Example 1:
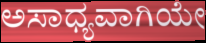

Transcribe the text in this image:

ಅಸಾಧ್ಯವಾಗಿಯೇ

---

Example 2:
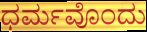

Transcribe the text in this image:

ಧರ್ಮವೊಂದು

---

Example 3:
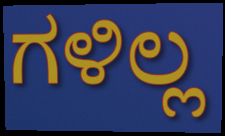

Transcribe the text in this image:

ಗಳಿಲ್ಲ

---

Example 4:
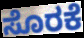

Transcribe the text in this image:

ಸೊರಕೆ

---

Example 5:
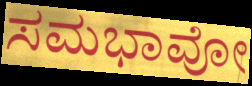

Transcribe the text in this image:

ಸಮಭಾವೋ